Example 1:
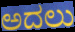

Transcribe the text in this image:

ಅದಲು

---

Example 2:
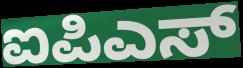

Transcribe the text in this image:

ಐಪಿಎಸ್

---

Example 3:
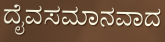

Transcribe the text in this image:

ದೈವಸಮಾನವಾದ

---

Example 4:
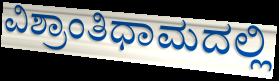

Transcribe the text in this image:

ವಿಶ್ರಾಂತಿಧಾಮದಲ್ಲಿ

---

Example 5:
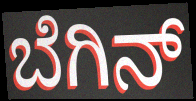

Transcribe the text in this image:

ಬೆಗಿನ್